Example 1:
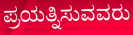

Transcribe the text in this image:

ಪ್ರಯತ್ನಿಸುವವರು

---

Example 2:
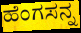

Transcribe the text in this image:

ಹೆಂಗಸನ್ನ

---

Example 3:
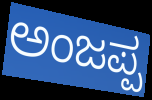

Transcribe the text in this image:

ಅಂಜಪ್ಪ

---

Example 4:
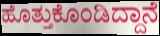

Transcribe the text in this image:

ಹೊತ್ತುಕೊಂಡಿದ್ದಾನೆ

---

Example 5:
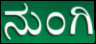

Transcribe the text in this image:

ನುಂಗಿ